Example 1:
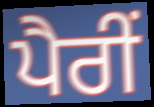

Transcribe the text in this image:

ਪੈਰੀਂ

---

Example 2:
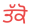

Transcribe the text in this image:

ਤੱਕੋ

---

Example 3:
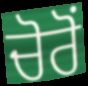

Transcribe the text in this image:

ਚੋਰੋਂ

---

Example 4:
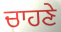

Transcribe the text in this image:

ਚਾਹਣੇ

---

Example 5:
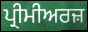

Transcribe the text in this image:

ਪ੍ਰੀਮੀਅਰਜ਼